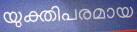
യുക്തിപരമായ